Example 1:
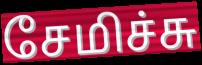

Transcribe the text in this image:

சேமிச்சு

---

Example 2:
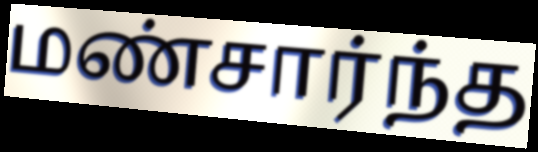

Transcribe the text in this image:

மண்சார்ந்த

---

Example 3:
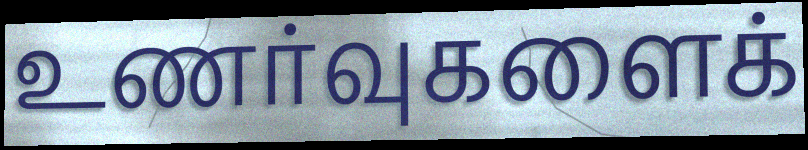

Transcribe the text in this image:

உணர்வுகளைக்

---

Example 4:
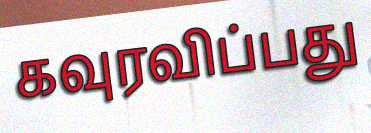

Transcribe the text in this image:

கவுரவிப்பது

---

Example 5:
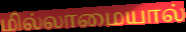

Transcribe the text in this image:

மில்லாமையால்